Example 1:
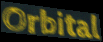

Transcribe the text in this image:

Orbital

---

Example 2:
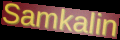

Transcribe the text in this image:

Samkalin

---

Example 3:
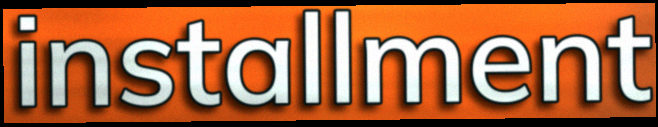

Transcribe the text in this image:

installment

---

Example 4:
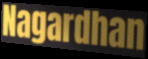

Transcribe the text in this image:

Nagardhan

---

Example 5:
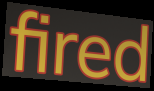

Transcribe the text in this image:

fired